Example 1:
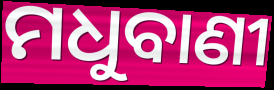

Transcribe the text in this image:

ମଧୁବାଣୀ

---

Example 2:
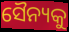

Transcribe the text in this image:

ସୈନ୍ୟକୁ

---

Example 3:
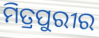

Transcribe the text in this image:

ମିତ୍ରପୁରୀର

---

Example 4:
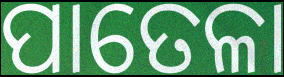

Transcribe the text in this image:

ପାତେଳା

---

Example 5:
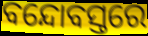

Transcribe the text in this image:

ବନ୍ଦୋବସ୍ତରେ